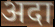
अदा